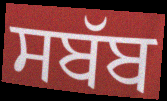
ਸਬੱਬ